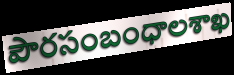
పౌరసంబంధాలశాఖ